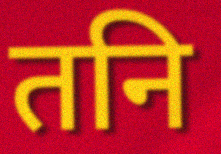
तनि